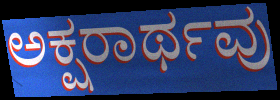
ಅಕ್ಷರಾರ್ಥವು